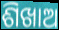
ଶିଖାଅ